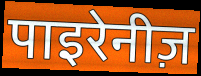
पाइरेनीज़